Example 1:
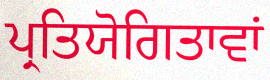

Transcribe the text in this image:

ਪ੍ਰਤਿਯੋਗਿਤਾਵਾਂ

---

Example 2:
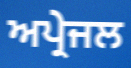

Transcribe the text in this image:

ਅਪ੍ਰੇਜਲ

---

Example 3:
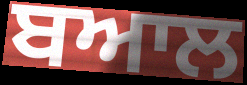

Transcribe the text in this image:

ਬਆਲ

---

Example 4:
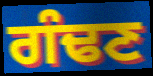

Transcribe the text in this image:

ਗੰਢਣ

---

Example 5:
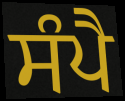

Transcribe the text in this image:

ਸੰਪੈ